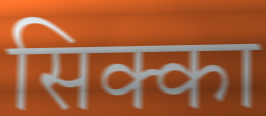
सिक्‍का